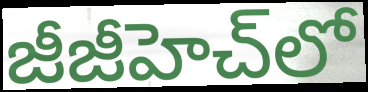
జీజీహెచ్‌లో